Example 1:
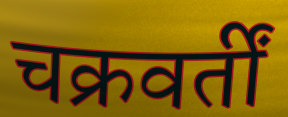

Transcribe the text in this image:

चक्रवर्तीं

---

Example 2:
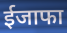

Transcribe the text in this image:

ईजाफा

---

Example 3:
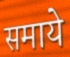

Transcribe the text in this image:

समाये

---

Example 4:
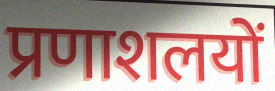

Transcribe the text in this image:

प्रणाशलयों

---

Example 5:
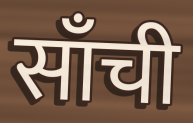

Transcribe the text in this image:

साँची